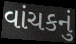
વાંચકનું